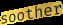
soother